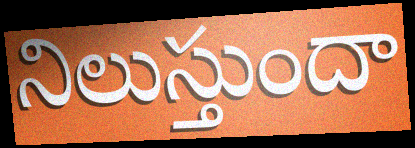
నిలుస్తుందా